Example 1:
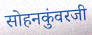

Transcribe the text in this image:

सोहनकुंवरजी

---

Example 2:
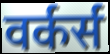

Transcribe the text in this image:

वर्कर्स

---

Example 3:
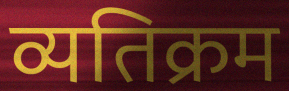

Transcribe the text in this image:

व्यतिक्रम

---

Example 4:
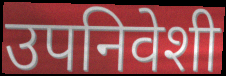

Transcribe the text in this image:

उपनिवेशी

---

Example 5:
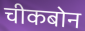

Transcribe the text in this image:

चीकबोन